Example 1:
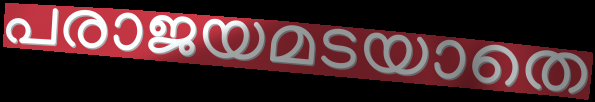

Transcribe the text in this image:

പരാജയമടയാതെ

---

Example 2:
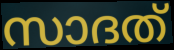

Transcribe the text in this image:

സാദത്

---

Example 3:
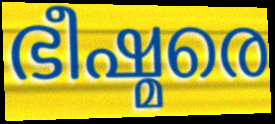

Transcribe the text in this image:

ഭീഷ്മരെ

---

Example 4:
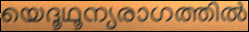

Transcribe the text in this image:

യെദൂഥൂന്യരാഗത്തിൽ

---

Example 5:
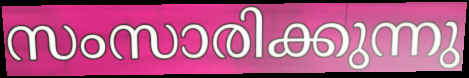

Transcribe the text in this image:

സംസാരിക്കുന്നു